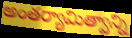
అంతర్యామిత్వాన్ని